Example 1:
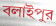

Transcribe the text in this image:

বলাইপুর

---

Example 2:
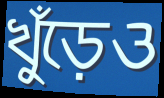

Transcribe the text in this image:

খুঁড়েও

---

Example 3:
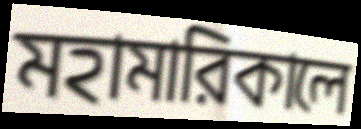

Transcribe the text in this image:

মহামারিকালে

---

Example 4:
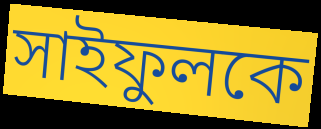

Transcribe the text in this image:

সাইফুলকে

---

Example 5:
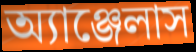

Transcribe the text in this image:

অ্যাঞ্জেলাস